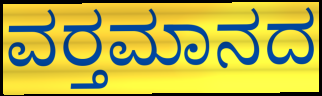
ವರ‍್ತಮಾನದ